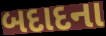
બદાદના